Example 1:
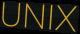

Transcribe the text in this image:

UNIX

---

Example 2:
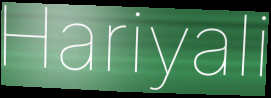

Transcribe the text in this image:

Hariyali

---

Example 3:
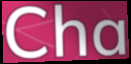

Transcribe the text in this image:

Cha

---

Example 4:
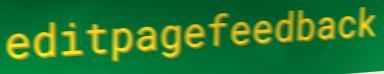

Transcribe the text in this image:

editpagefeedback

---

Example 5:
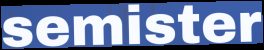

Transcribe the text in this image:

semister